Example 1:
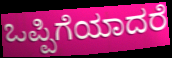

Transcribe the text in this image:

ಒಪ್ಪಿಗೆಯಾದರೆ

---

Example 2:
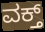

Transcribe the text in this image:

ವಕ್ತ್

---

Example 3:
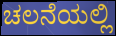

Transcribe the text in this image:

ಚಲನೆಯಲ್ಲಿ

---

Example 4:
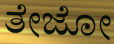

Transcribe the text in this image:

ತೇಜೋ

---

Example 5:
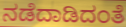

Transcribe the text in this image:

ನಡೆದಾಡಿದಂತೆ